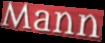
Mann